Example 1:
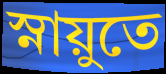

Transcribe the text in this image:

স্নায়ুতে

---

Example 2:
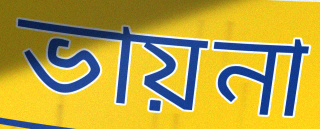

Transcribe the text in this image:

ভায়না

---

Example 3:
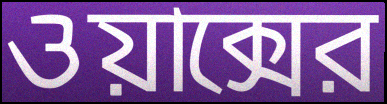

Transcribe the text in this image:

ওয়াক্সের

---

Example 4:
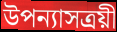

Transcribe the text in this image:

উপন্যাসত্রয়ী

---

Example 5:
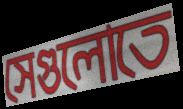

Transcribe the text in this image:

সেগুলোতে